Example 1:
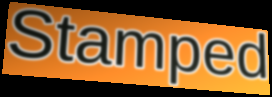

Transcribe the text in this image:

Stamped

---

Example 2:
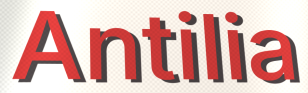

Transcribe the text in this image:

Antilia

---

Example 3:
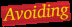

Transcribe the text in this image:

Avoiding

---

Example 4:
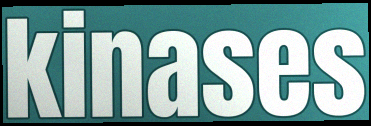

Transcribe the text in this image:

kinases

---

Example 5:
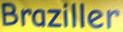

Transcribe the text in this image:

Braziller